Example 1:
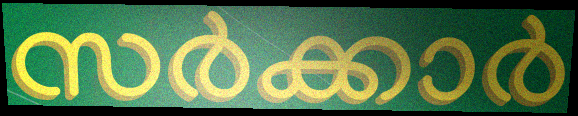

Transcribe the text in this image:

സർക്കാർ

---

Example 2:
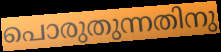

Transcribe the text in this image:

പൊരുതുന്നതിനു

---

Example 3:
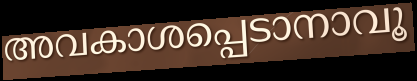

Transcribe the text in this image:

അവകാശപ്പെടാനാവൂ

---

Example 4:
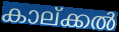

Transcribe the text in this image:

കാല്ക്കൽ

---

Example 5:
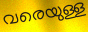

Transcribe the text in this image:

വരെയുള്ള